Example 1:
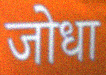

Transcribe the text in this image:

जोधा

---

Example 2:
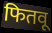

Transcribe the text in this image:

फितवू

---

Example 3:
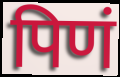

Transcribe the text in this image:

पिणं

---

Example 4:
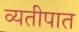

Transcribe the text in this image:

व्यतीपात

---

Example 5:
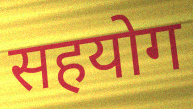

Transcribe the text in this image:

सहयोग